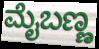
ಮೈಬಣ್ಣ